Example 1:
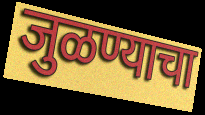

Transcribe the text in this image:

जुळण्याचा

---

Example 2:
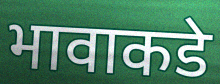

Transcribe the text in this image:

भावाकडे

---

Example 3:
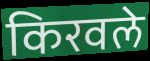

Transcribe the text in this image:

किरवले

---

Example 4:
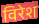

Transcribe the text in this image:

विरेश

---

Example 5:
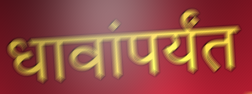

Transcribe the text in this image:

धावांपर्यंत